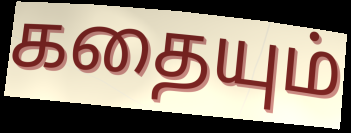
கதையும்